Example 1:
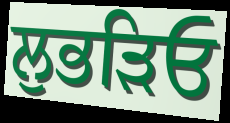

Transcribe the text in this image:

ਲੁਭੜਿਓ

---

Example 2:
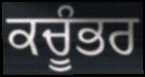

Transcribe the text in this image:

ਕਚੂੰਭਰ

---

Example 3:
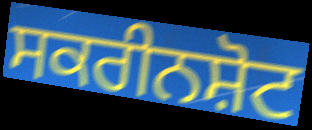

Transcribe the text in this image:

ਸਕਰੀਨਸ਼ੋਟ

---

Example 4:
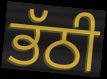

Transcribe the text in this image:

ਭੱਠੀ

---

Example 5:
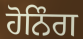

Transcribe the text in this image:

ਹੋਨਿੰਗ